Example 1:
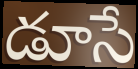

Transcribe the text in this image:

డూసే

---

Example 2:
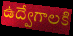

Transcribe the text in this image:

ఉద్వేగాలకి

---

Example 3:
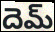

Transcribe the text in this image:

దెమ్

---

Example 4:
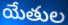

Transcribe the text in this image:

యేతుల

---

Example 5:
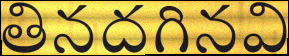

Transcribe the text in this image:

తినదగినవి